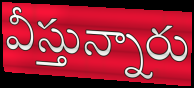
వీస్తున్నారు